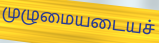
முழுமையடையச்